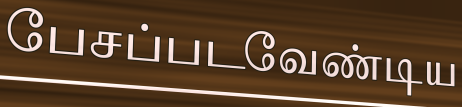
பேசப்படவேண்டிய